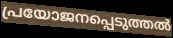
പ്രയോജനപ്പെടുത്തൽ